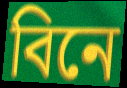
বিনে